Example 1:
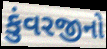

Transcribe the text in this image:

કુંવરજીનો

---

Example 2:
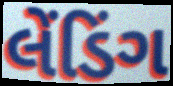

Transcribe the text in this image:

લેંડિંગ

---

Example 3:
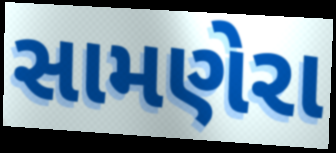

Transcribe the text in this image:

સામણેરા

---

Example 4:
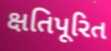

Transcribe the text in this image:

ક્ષતિપૂરિત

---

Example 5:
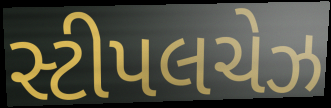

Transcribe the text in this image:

સ્ટીપલચેઝ